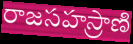
రాజసహస్రాణి